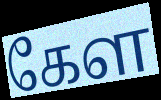
கேள